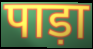
पाड़ा